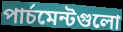
পার্চমেন্টগুলো